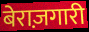
बेराज़गारी